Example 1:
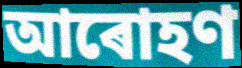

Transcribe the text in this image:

আৰোহণ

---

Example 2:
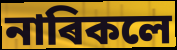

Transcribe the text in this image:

নাৰিকলে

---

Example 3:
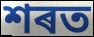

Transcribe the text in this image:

শৰত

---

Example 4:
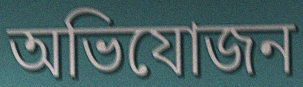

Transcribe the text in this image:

অভিযোজন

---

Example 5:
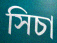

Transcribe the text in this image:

সিচা